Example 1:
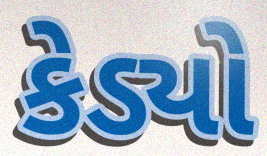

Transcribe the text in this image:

કેડ્યો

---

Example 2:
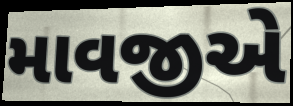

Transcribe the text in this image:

માવજીએ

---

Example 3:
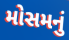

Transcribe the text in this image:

મોસમનું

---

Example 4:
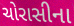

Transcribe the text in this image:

ચોરાસીના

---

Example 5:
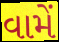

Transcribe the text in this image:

વામેં